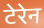
टेरेन